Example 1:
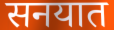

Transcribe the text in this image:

सनयात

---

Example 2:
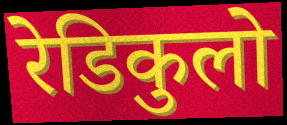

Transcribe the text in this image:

रेडिकुलो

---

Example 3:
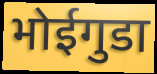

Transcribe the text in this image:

भोईगुडा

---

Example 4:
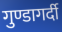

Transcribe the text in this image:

गुण्डागर्दी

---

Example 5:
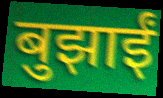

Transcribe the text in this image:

बुझाईं